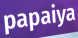
papaiya